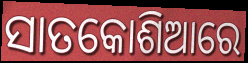
ସାତକୋଶିଆରେ